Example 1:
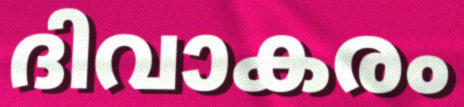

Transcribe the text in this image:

ദിവാകരം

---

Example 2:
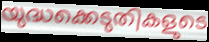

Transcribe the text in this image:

യുദ്ധക്കെടുതികളുടെ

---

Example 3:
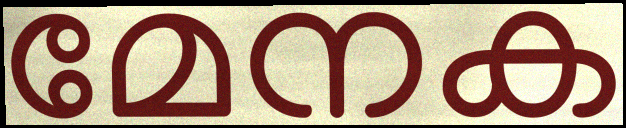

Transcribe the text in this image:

മേനക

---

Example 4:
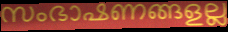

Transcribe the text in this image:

സംഭാഷണങ്ങളല്ല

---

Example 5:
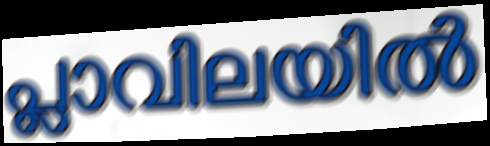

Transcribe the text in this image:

പ്ലാവിലയിൽ